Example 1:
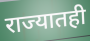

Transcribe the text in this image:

राज्यातही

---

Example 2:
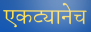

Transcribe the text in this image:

एकट्यानेच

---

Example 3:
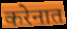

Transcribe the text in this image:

करेनात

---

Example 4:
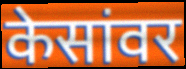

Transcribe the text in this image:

केसांवर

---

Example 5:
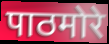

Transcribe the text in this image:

पाठमोरे